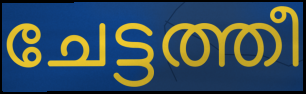
ചേട്ടത്തീ